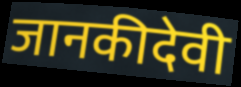
जानकीदेवी